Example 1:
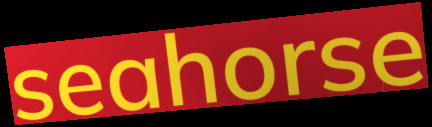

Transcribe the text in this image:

seahorse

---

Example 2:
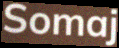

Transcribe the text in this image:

Somaj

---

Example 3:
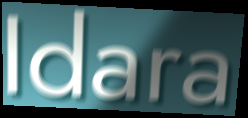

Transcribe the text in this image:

Idara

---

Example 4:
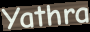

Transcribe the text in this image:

Yathra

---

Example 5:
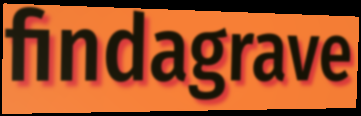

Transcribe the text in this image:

findagrave